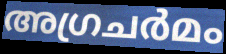
അഗ്രചർമം